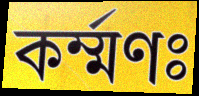
কর্ম্মণঃ